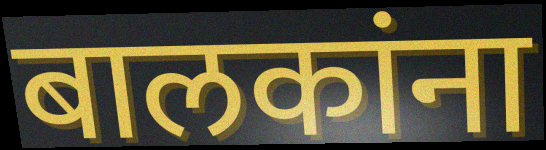
बालकांना